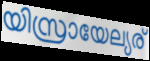
യിസ്രായേല്യര്